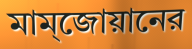
মাম্জোয়ানের